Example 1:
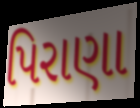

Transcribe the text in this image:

પિરાણા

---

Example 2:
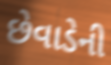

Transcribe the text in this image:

છેવાડેની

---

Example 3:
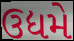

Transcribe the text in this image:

ઉદ્યમે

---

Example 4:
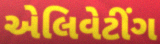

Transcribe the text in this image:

એલિવેટીંગ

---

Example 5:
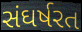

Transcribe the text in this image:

સંઘર્ષરત